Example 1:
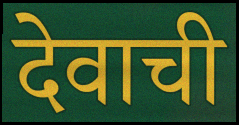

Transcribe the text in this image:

देवाची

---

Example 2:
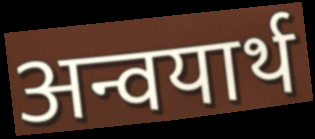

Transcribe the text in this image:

अन्वयार्थ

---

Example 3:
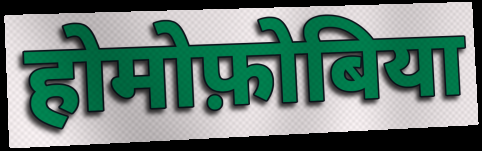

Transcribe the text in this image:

होमोफ़ोबिया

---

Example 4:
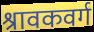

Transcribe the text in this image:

श्रावकवर्ग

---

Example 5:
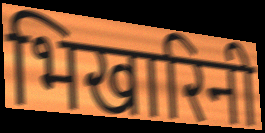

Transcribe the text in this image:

भिखारिनी